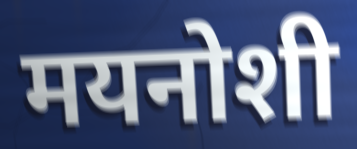
मयनोशी